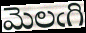
మెలఁగి